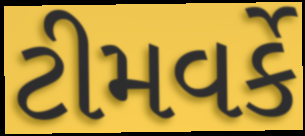
ટીમવર્કે